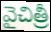
వైచిత్రీ